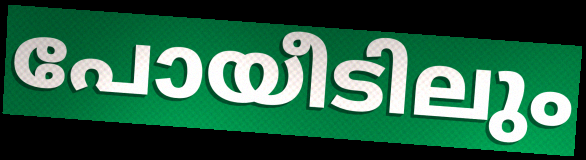
പോയീടിലും